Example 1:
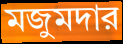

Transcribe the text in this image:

মজুমদার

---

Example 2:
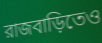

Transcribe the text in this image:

রাজবাড়িতেও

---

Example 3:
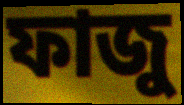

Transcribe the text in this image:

ফাজু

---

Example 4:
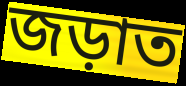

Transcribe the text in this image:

জড়াত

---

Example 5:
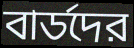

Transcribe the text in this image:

বার্ডদের